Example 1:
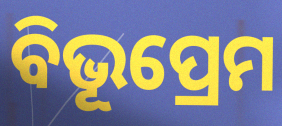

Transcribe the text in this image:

ବିଭୂପ୍ରେମ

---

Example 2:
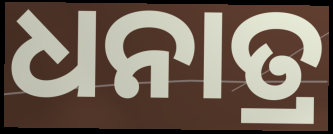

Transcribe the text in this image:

ଧନାତ୍ର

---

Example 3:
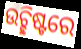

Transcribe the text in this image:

ଉଚ୍ଛିଷ୍ଟରେ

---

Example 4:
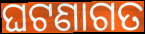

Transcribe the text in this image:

ଘଟଣାଗତ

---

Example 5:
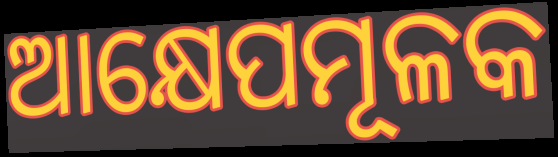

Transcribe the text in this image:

ଆକ୍ଷେପମୂଳକ